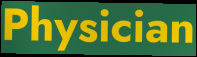
Physician